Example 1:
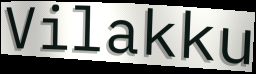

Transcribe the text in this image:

Vilakku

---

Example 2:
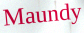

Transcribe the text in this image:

Maundy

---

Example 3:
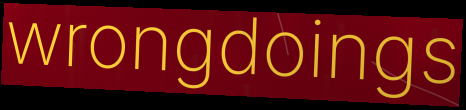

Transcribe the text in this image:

wrongdoings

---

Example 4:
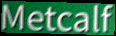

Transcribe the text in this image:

Metcalf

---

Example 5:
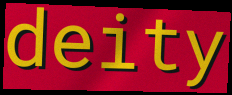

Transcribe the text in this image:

deity